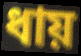
ধায়